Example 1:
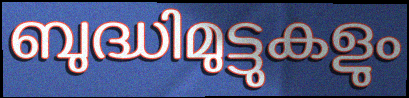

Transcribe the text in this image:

ബുദ്ധിമുട്ടുകളും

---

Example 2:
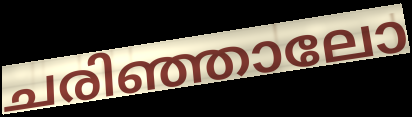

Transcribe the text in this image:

ചരിഞ്ഞാലോ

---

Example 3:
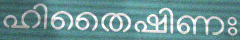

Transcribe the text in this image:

ഹിതൈഷിണഃ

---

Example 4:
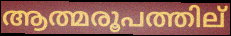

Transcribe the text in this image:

ആത്മരൂപത്തില്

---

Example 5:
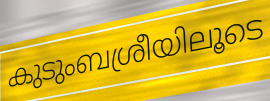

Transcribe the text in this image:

കുടുംബശ്രീയിലൂടെ